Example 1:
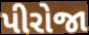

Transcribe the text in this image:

પીરોજા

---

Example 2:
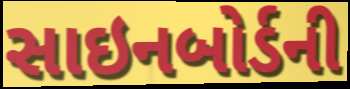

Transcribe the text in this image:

સાઇનબોર્ડની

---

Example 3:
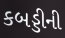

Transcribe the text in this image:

કબડ્ડીની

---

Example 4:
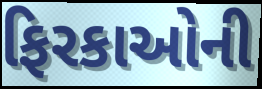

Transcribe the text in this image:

ફિરકાઓની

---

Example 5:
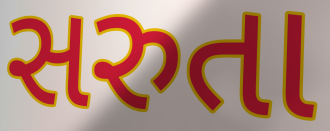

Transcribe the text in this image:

સરુતા